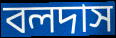
বলদাস